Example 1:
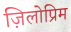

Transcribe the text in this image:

ज़िलोप्रिम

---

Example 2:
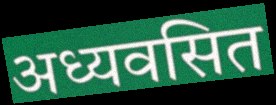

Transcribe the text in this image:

अध्यवसित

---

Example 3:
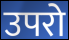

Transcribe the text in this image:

उपरो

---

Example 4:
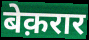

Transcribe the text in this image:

बेक़रार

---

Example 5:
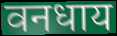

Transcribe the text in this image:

वनधाय